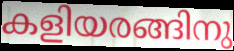
കളിയരങ്ങിനു